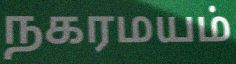
நகரமயம்